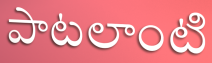
పాటలాంటి